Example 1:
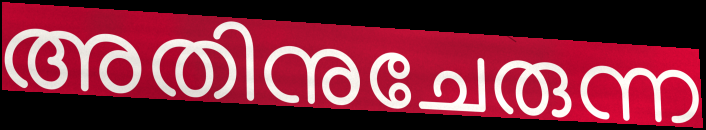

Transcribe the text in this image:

അതിനുചേരുന്ന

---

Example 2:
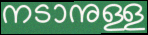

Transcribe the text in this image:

നടാനുള്ള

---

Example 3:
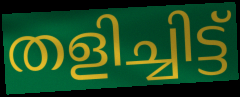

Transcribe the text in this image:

തളിച്ചിട്ട്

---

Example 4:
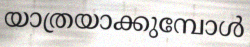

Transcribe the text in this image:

യാത്രയാക്കുമ്പോൾ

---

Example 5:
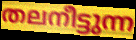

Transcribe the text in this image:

തലനീട്ടുന്ന